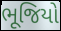
ભૂજિયો